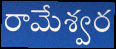
రామేశ్వర